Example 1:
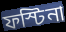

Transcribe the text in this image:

ফস্টিনা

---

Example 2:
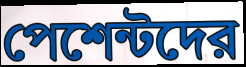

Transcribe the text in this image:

পেশেন্টদের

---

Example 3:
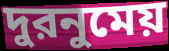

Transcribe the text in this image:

দুরনুমেয়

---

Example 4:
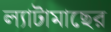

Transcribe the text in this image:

ল্যাটামাছের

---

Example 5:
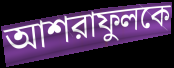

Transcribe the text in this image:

আশরাফুলকে